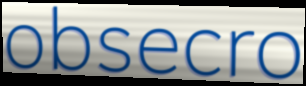
obsecro